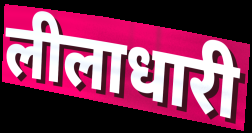
लीलाधारी